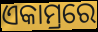
ଏକାମ୍ରରେ